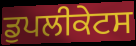
ਡੁਪਲੀਕੇਟਸ